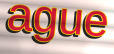
ague